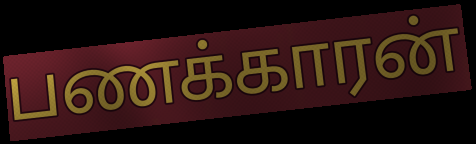
பணக்காரன்